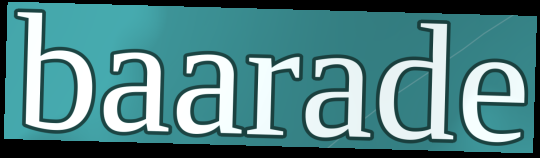
baarade